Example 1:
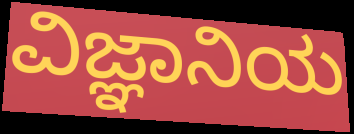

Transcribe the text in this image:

ವಿಜ್ಞಾನಿಯ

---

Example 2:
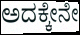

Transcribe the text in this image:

ಅದಕ್ಕೇನೇ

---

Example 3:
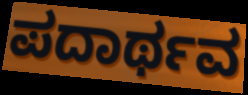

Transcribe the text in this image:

ಪದಾರ್ಥವ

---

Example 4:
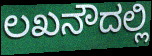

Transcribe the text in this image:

ಲಖನೌದಲ್ಲಿ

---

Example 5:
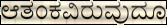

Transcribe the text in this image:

ಆತಂಕವಿರುವುದೂ